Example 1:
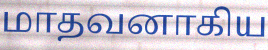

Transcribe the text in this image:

மாதவனாகிய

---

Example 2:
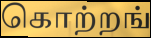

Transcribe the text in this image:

கொற்றங்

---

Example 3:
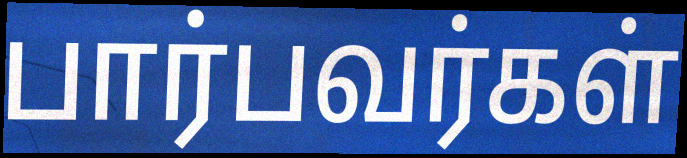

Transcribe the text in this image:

பார்பவர்கள்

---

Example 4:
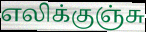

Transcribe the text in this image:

எலிக்குஞ்சு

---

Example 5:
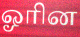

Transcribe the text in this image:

ஓரின